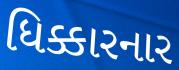
ધિક્કારનાર